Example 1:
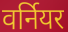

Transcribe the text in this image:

वर्नियर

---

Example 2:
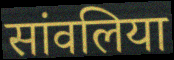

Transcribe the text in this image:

सांवलिया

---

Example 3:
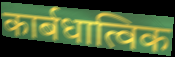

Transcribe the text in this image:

कार्बधात्विक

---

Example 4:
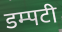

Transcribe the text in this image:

डम्पटी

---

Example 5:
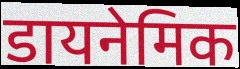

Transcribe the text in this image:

डायनेमिक